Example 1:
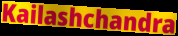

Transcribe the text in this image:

Kailashchandra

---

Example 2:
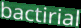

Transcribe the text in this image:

bactirial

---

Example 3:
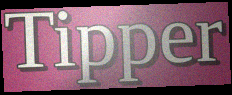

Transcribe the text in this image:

Tipper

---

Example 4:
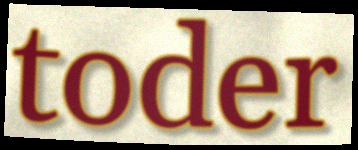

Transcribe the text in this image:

toder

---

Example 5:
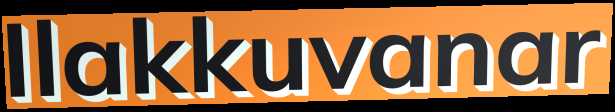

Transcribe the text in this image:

Ilakkuvanar